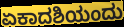
ಏಕಾದಶಿಯಂದು